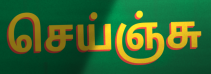
செய்ஞ்சு